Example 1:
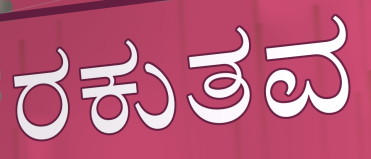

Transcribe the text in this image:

ರಕುತವ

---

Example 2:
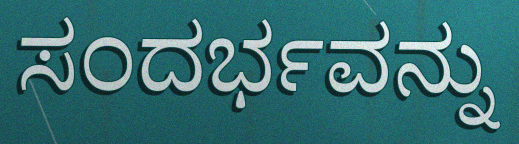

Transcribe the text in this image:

ಸಂದರ್ಭವನ್ನು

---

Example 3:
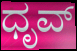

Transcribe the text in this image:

ಧೃವ್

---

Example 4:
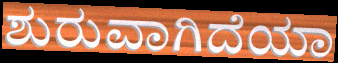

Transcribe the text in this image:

ಶುರುವಾಗಿದೆಯಾ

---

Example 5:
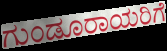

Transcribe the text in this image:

ಗುಂಡೂರಾಯರಿಗೆ